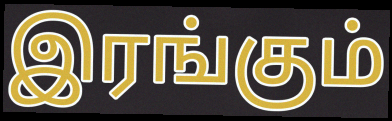
இரங்கும்